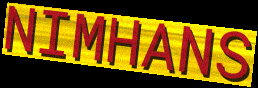
NIMHANS